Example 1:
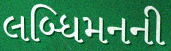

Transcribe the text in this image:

લબ્ધિમનની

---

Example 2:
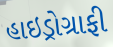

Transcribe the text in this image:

હાઇડ્રોગ્રાફી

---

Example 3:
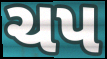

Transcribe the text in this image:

ચપ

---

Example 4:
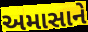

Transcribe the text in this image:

અમાસાને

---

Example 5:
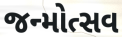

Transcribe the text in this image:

જન્મોત્સવ